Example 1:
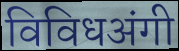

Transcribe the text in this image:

विविधअंगी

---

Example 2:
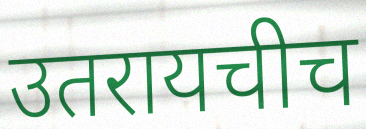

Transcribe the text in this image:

उतरायचीच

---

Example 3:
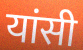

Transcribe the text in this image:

यांसी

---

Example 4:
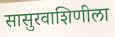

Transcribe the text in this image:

सासुरवाशिणीला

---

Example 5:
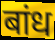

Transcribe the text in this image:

बांध